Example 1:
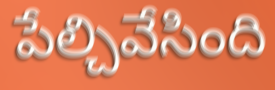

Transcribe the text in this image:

పేల్చివేసింది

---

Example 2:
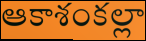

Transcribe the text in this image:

ఆకాశంకల్లా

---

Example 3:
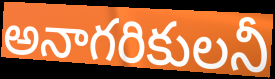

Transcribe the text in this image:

అనాగరికులనీ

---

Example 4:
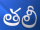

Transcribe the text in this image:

తలీ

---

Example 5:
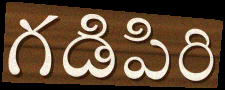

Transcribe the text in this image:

గడిపిరి